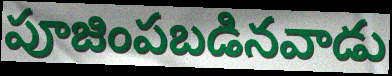
పూజింపబడినవాడు